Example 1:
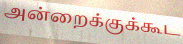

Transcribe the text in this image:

அன்றைக்குக்கூட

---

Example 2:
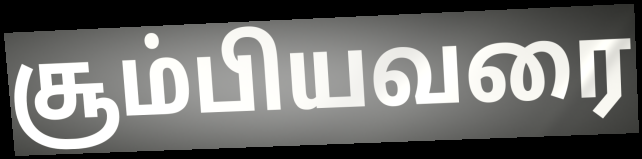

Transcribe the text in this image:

சூம்பியவரை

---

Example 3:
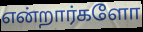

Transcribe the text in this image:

என்றார்களோ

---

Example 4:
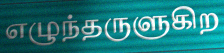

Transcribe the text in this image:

எழுந்தருளுகிற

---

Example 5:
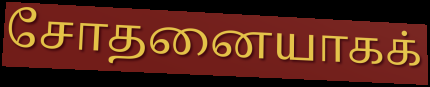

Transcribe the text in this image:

சோதனையாகக்